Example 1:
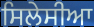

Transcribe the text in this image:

ਸਿਲੇਸੀਆ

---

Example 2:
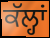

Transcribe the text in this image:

ਕੱਲ੍ਹਾਂ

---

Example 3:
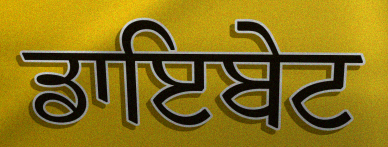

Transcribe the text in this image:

ਡਾਇਬੇਟ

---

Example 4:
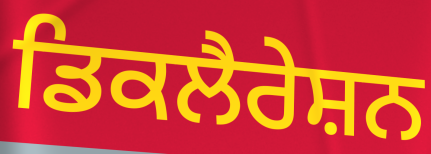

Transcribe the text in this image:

ਡਿਕਲੈਰੇਸ਼ਨ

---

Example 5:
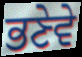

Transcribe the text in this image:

ਭਣੇਵੇ